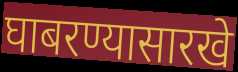
घाबरण्यासारखे